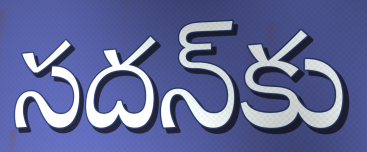
సదన్‌కు